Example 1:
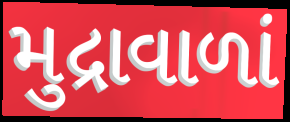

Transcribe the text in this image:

મુદ્રાવાળાં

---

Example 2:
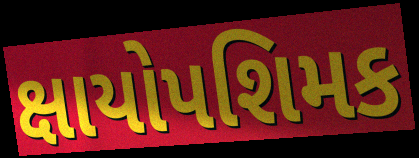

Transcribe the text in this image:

ક્ષાયોપશિમક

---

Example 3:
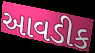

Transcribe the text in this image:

આવડીક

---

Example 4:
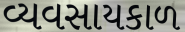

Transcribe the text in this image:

વ્યવસાયકાળ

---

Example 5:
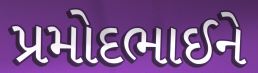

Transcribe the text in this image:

પ્રમોદભાઈને